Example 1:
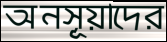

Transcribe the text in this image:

অনসূয়াদের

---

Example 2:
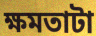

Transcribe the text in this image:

ক্ষমতাটা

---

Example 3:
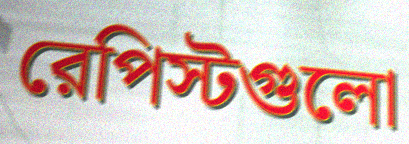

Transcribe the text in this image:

রেপিস্টগুলো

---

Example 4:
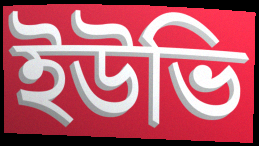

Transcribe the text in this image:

ইউভি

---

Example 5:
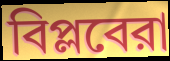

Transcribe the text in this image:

বিপ্লবেরা